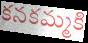
కనకమ్మకి